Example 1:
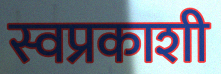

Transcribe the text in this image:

स्वप्रकाशी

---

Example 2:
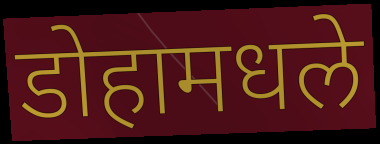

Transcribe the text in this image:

डोहामधले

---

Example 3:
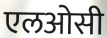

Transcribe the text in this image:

एलओसी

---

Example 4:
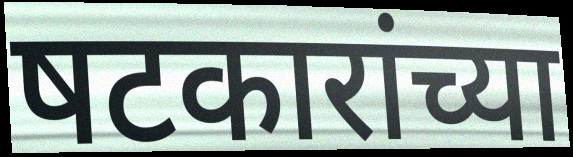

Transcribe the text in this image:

षटकारांच्या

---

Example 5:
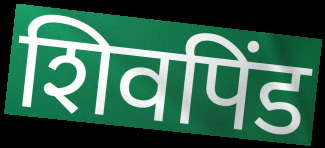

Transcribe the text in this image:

शिवपिंड